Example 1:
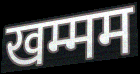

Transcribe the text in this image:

खम्मम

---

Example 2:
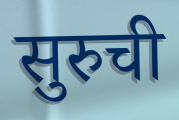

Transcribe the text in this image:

सुरुची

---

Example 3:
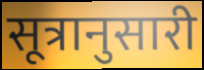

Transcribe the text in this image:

सूत्रानुसारी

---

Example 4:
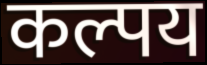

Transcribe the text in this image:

कल्पय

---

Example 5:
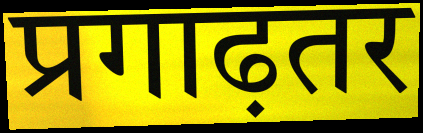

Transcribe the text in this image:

प्रगाढ़तर